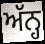
ਅੱਨ੍ਹ